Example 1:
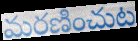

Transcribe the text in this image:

మరణించుట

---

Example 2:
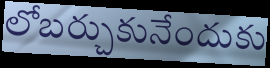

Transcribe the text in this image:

లోబర్చుకునేందుకు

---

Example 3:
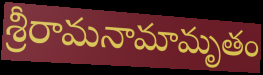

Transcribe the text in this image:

శ్రీరామనామామృతం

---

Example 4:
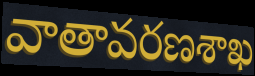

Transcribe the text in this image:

వాతావరణశాఖ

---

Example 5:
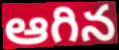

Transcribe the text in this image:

ఆగిన